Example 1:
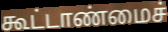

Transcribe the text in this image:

கூட்டாண்மைச்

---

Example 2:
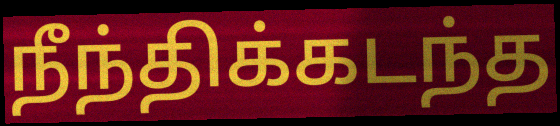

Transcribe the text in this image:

நீந்திக்கடந்த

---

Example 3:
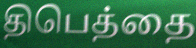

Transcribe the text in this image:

திபெத்தை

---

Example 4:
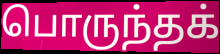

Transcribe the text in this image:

பொருந்தக்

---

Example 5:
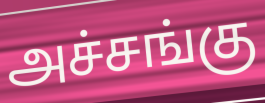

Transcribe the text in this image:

அச்சங்கு